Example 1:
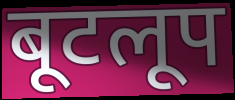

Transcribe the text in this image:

बूटलूप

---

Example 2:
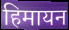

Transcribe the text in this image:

हिमायन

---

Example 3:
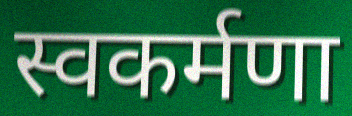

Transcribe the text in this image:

स्वकर्मणा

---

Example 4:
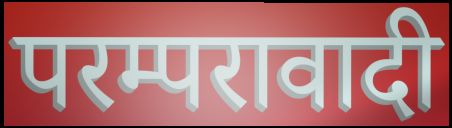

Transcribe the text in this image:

परम्परावादी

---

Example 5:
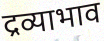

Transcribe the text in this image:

द्रव्याभाव